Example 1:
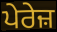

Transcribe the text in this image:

ਪੇਰੇਜ਼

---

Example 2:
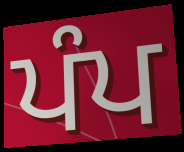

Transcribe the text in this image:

ਪੰਪ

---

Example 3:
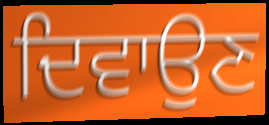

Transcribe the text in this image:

ਦਿਵਾਉਣ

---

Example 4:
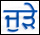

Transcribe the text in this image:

ਜੁੜੇ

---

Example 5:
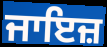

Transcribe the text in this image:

ਜਾਇਜ਼